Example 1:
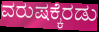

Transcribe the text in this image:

ವರುಷಕ್ಕೆರಡು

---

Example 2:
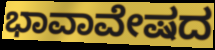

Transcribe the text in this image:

ಭಾವಾವೇಷದ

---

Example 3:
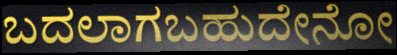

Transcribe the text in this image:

ಬದಲಾಗಬಹುದೇನೋ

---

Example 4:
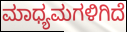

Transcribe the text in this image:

ಮಾಧ್ಯಮಗಳಿಗಿದೆ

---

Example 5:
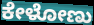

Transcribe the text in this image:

ಕೇಳೋಣು